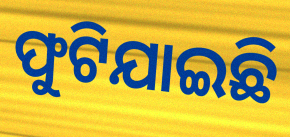
ଫୁଟିଯାଇଛି